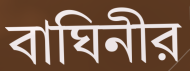
বাঘিনীর